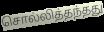
சொல்லித்தந்தது